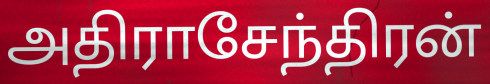
அதிராசேந்திரன்